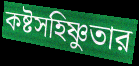
কষ্টসহিষ্ণুতার